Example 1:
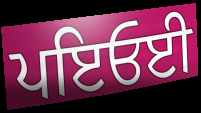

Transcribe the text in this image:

ਪਇਓਈ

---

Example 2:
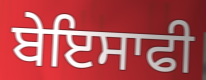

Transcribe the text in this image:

ਬੇਇਸਾਫੀ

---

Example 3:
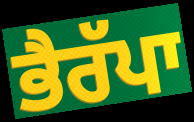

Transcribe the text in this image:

ਭੈਰੱਪਾ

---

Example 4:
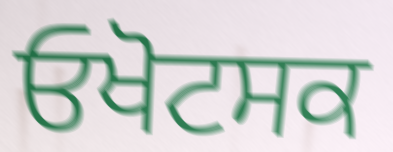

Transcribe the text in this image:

ਓਖੋਟਸਕ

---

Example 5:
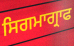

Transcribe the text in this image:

ਸਿਗਮਾਗ੍ਰਾਫ